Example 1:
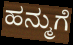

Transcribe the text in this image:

ಹನ್ಮುಗೆ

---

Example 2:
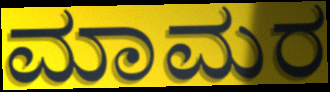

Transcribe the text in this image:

ಮಾಮರ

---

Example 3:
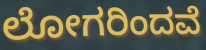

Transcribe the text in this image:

ಲೋಗರಿಂದವೆ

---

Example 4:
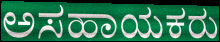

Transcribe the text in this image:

ಅಸಹಾಯಕರು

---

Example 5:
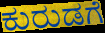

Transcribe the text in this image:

ಕುರುಡಗೆ